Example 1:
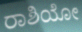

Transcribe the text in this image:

ರಾಶಿಯೋ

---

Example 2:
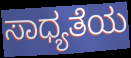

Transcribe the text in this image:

ಸಾಧ್ಯತೆಯ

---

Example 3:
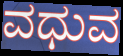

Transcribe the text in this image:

ವಧುವ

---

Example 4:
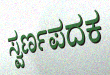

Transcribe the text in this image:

ಸ್ವರ್ಣಪದಕ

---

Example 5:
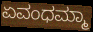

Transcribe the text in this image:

ಏವಂಧಮ್ಮಾ